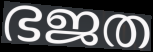
ഭജത